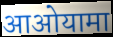
आओयामा